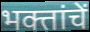
भक्तांचें